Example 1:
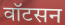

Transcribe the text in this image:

वॉटसन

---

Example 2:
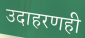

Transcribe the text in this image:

उदाहरणही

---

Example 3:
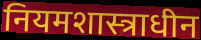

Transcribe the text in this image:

नियमशास्त्राधीन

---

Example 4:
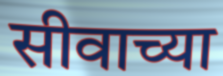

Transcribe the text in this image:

सीवाच्या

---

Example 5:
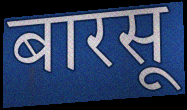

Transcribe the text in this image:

बारसू